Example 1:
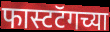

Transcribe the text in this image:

फास्टटॅगच्या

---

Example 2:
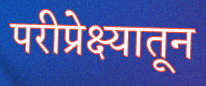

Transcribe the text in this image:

परीप्रेक्ष्यातून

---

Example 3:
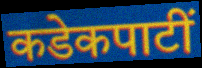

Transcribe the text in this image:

कडेकपाटीं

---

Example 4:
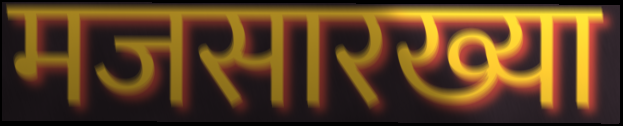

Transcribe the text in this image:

मजसारख्या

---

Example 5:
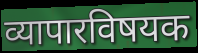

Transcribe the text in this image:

व्यापारविषयक